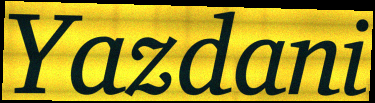
Yazdani